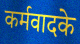
कर्मवादके